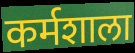
कर्मशाला